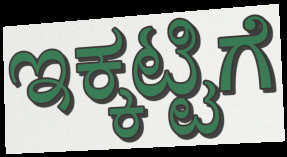
ಇಕ್ಕಟ್ಟಿಗೆ